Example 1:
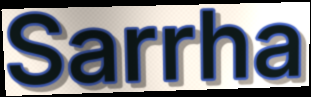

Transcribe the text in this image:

Sarrha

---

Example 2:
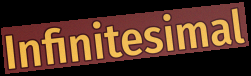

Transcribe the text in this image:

Infinitesimal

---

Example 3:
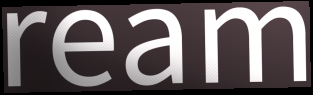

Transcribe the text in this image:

ream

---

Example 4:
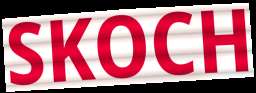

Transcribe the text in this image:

SKOCH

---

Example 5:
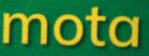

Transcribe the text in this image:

mota